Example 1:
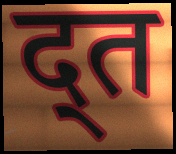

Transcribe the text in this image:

द्त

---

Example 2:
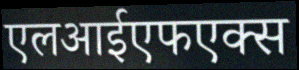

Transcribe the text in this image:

एलआईएफएक्स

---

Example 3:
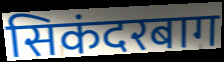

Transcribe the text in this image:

सिकंदरबाग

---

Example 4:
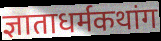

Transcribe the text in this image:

ज्ञाताधर्मकथांग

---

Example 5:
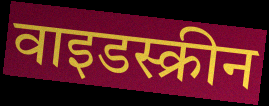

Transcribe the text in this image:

वाइडस्क्रीन